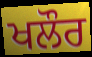
ਖਲੌਰ